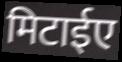
मिटाईए